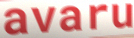
avaru